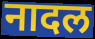
नादल